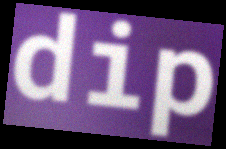
dip